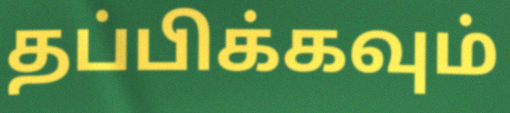
தப்பிக்கவும்